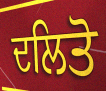
ਦਲਿਤੋ